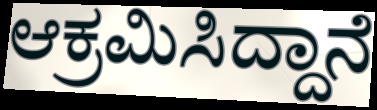
ಆಕ್ರಮಿಸಿದ್ದಾನೆ